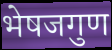
भेषजगुण